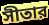
সীতার